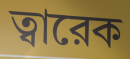
ত্বারেক